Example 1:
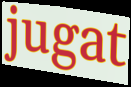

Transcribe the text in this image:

jugat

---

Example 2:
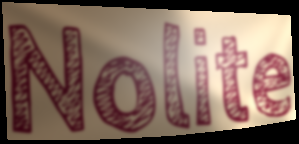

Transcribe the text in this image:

Nolite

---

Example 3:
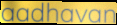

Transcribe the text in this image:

aadhavan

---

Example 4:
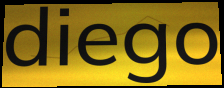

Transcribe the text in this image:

diego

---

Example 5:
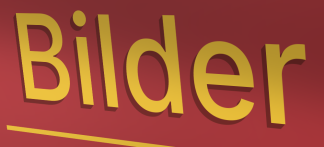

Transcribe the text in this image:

Bilder